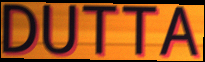
DUTTA